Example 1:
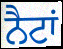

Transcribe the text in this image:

ਨੈਟਾਂ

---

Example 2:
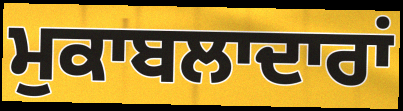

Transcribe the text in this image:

ਮੁਕਾਬਲਾਦਾਰਾਂ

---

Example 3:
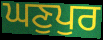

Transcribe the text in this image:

ਘਣੁਪੁਰ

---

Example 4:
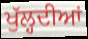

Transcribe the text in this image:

ਖੁੱਲ੍ਹਦੀਆਂ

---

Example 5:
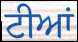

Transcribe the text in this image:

ਟੀਆਂ